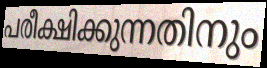
പരീക്ഷിക്കുന്നതിനും